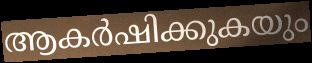
ആകർഷിക്കുകയും